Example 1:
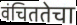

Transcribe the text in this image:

वंचिततेचा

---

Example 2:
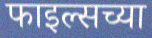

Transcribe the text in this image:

फाइल्सच्या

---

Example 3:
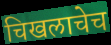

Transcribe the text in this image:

चिखलाचेच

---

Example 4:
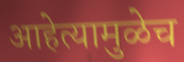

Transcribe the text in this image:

आहेत्यामुळेच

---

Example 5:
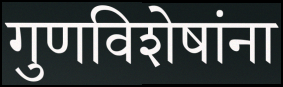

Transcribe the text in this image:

गुणविशेषांना